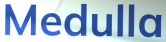
Medulla